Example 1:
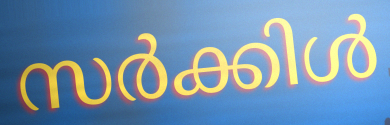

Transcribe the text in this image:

സർക്കിൾ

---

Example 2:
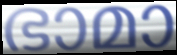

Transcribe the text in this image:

ഭാമാ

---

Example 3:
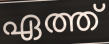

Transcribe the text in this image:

ഏത്ത്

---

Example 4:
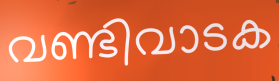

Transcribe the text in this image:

വണ്ടിവാടക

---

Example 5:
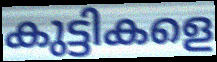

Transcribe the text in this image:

കുട്ടികളെ